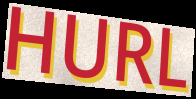
HURL